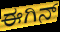
ಈಗಿನ್